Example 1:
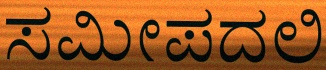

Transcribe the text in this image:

ಸಮೀಪದಲಿ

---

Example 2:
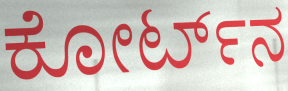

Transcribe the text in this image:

ಕೋರ್ಟ್‌ನ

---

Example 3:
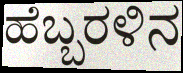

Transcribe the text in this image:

ಹೆಬ್ಬರಳಿನ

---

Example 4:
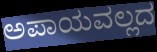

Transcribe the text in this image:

ಅಪಾಯವಲ್ಲದ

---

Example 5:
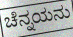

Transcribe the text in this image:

ಚೆನ್ನಯನು